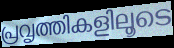
പ്രവൃത്തികളിലൂടെ